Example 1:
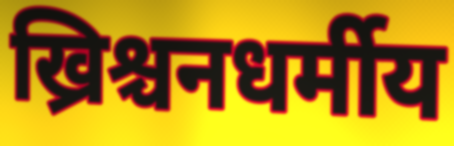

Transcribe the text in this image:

ख्रिश्चनधर्मीय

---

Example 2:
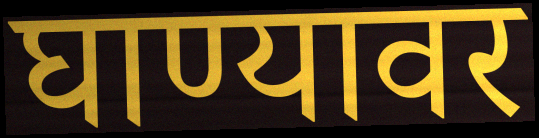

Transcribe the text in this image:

घाण्यावर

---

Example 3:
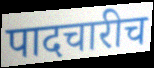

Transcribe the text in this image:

पादचारीच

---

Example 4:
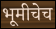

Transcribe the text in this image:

भूमीचेच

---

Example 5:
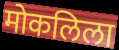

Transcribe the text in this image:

मोकलिला